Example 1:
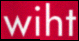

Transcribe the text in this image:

wiht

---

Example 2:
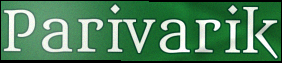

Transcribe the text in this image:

Parivarik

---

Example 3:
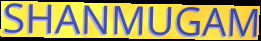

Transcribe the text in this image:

SHANMUGAM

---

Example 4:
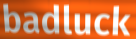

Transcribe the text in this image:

badluck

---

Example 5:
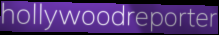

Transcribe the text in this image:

hollywoodreporter